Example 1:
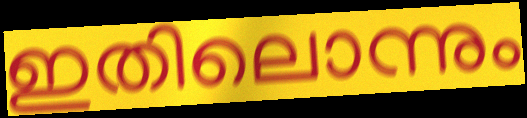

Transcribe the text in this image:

ഇതിലൊന്നും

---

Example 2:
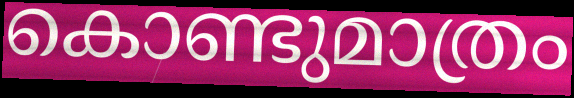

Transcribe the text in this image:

കൊണ്ടുമാത്രം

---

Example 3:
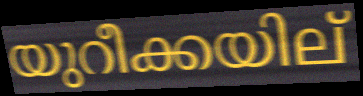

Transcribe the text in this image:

യുറീക്കയില്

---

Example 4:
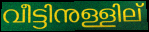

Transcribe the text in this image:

വീട്ടിനുള്ളില്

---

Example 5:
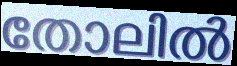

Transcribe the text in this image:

തോലിൽ